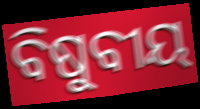
ବିଷୁବୀୟ